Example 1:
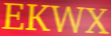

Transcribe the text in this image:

EKWX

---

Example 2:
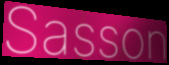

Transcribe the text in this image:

Sasson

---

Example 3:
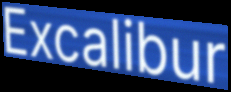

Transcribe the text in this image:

Excalibur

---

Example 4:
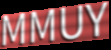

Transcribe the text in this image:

MMUY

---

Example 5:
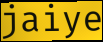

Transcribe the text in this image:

jaiye